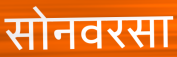
सोनवरसा